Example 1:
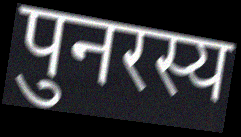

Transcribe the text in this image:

पुनरस्य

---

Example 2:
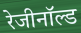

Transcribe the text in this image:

रेजीनॉल्ड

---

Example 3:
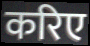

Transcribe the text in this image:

करिए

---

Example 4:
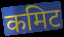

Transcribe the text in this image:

कमिट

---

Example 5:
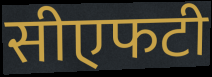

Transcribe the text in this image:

सीएफटी